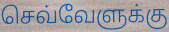
செவ்வேளுக்கு